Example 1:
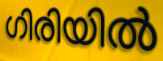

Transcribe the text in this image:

ഗിരിയിൽ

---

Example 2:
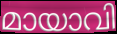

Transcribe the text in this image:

മായാവി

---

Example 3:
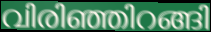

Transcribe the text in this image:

വിരിഞ്ഞിറങ്ങി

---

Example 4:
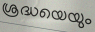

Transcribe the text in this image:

ശ്രദ്ധയെയും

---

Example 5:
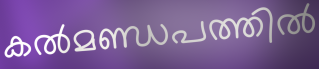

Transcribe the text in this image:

കൽമണ്ഡപത്തിൽ